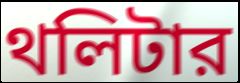
থলিটার